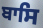
ਬਾਸਿ